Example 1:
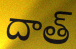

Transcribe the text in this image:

దాత్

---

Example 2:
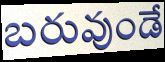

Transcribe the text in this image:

బరువుండే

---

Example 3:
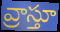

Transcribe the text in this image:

వ్రాస్తూ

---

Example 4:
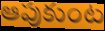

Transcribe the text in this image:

ఆపుకుంట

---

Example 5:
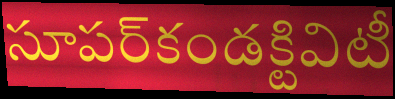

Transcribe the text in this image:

సూపర్‌కండక్టివిటీ